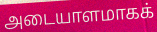
அடையாளமாகக்